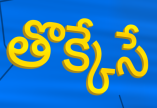
తొక్కేసే